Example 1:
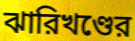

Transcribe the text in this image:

ঝারিখণ্ডের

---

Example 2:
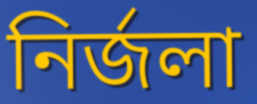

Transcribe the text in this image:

নির্জলা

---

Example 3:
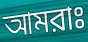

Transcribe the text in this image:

আমরাঃ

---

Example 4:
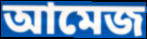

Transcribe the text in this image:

আমেজ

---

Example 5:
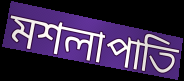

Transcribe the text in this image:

মশলাপাতি